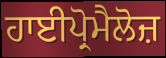
ਹਾਈਪ੍ਰੋਮੈਲੋਜ਼